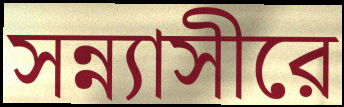
সন্ন্যাসীরে